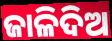
ଜାଳିଦିଅ